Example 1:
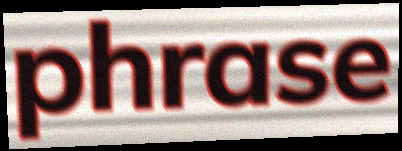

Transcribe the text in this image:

phrase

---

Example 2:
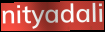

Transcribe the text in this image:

nityadali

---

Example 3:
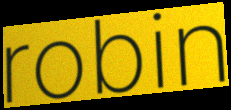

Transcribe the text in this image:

robin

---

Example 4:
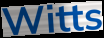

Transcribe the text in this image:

Witts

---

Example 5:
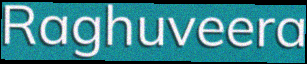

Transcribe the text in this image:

Raghuveera